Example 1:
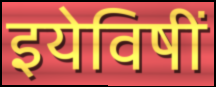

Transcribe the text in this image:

इयेविषीं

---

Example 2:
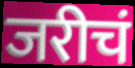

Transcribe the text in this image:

जरीचं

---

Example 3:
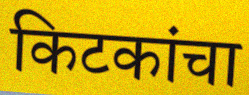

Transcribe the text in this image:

किटकांचा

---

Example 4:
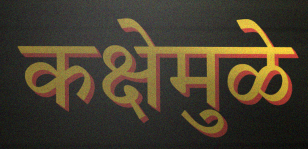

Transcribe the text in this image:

कक्षेमुळे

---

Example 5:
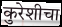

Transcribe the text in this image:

कुरेशीचा